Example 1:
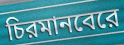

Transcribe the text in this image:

চিরমানবেরে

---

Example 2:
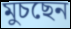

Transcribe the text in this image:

মুচছেন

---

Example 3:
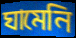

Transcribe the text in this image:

ঘামেনি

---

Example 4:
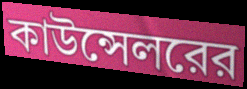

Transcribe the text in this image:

কাউন্সেলরের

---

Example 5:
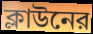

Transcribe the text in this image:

ক্লাউনের